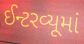
ઈન્ટરવ્યૂમાં